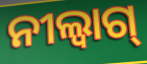
ନୀଲ୍ବାଗ୍